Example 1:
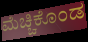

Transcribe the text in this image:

ಮೆಚ್ಚಿಕೊಂಡ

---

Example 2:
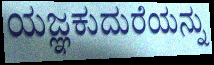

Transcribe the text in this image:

ಯಜ್ಞಕುದುರೆಯನ್ನು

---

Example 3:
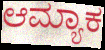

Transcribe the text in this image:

ಆಮ್ಯಾಕ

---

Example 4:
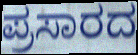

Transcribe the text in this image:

ಪ್ರಸಾರದ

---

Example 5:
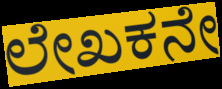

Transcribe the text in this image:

ಲೇಖಕನೇ